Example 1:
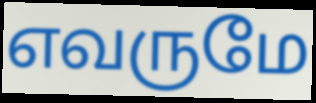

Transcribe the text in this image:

எவருமே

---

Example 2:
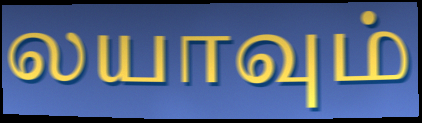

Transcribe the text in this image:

லயாவும்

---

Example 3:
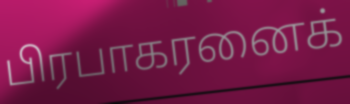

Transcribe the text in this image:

பிரபாகரனைக்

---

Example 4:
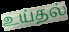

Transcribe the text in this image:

உய்தல்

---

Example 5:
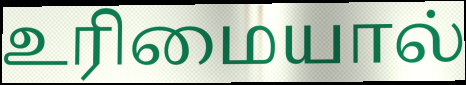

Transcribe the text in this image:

உரிமையால்